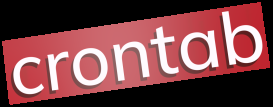
crontab